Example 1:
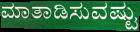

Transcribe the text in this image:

ಮಾತಾಡಿಸುವಷ್ಟು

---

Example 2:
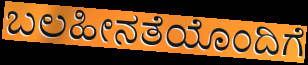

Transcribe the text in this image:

ಬಲಹೀನತೆಯೊಂದಿಗೆ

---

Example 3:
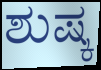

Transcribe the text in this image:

ಶುಷ್ಕ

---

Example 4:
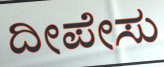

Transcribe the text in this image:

ದೀಪೇಸು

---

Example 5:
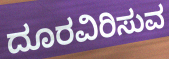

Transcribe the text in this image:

ದೂರವಿರಿಸುವ